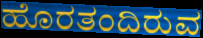
ಹೊರತಂದಿರುವ